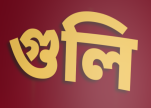
গুলি